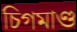
চিগমাণ্ড